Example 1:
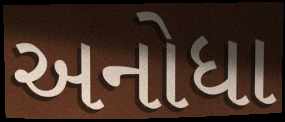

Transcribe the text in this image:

અનોધા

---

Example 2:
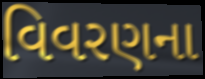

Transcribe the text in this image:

વિવરણના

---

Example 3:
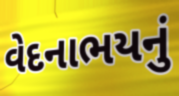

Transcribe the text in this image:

વેદનાભયનું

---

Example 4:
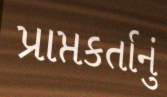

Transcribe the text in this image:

પ્રાપ્તકર્તાનું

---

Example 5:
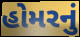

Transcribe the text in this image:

હોમરનું